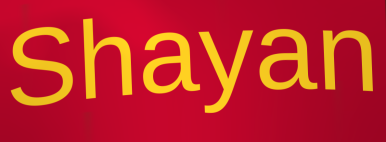
Shayan